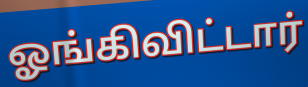
ஓங்கிவிட்டார்